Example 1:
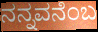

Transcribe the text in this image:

ನನ್ನವನೆಂಬ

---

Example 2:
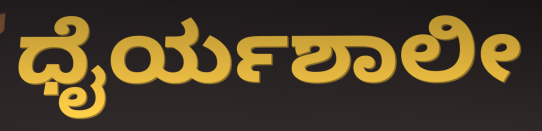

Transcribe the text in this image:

ಧೈರ್ಯಶಾಲೀ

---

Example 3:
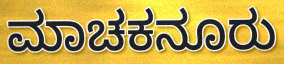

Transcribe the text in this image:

ಮಾಚಕನೂರು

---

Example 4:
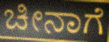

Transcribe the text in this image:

ಚೀನಾಗೆ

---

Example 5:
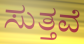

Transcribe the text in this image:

ಸುತ್ತವೆ